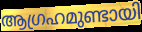
ആഗ്രഹമുണ്ടായി